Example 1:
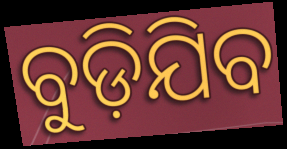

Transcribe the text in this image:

ବୁଡ଼ିଯିବ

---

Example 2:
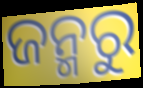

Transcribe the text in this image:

ଜନ୍ମରୁ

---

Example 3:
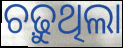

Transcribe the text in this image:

ଚଢ଼ୁଥିଲା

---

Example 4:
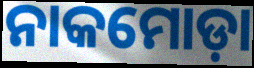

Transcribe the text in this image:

ନାକମୋଡ଼ା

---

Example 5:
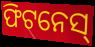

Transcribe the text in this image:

ଫିଟନେସ୍